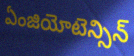
ఏంజియోటెన్సిన్